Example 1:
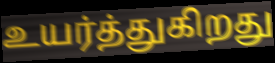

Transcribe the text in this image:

உயர்த்துகிறது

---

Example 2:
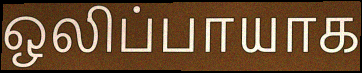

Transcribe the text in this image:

ஒலிப்பாயாக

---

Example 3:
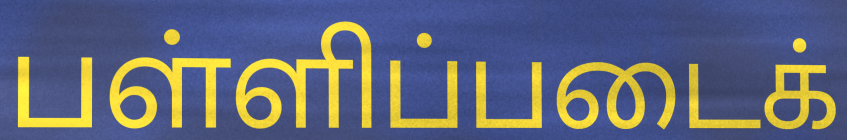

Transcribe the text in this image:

பள்ளிப்படைக்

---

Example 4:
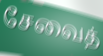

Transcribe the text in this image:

சேவைத்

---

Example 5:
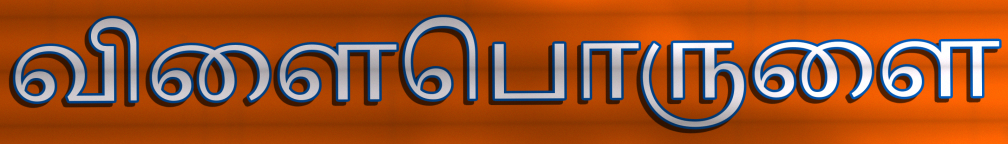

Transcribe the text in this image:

விளைபொருளை